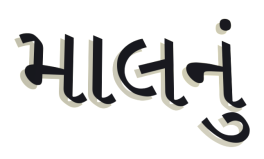
માલનું